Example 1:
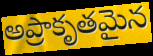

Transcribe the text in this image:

అప్రాకృతమైన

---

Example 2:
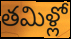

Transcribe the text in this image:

తమిళ్లో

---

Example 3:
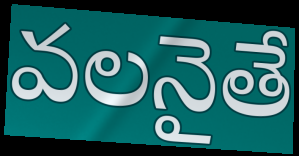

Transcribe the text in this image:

వలనైతే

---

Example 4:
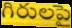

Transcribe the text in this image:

గిరులపై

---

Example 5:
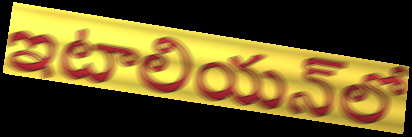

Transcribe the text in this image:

ఇటాలియన్‌లో